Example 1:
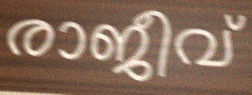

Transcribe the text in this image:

രാജീവ്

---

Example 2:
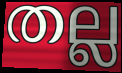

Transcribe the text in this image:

തല്ല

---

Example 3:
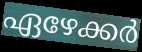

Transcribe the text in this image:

ഏഴേക്കർ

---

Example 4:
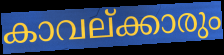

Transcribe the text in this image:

കാവല്ക്കാരും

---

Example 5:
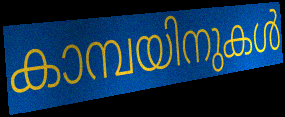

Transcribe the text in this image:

കാമ്പയിനുകൾ